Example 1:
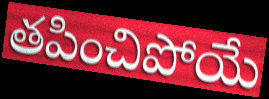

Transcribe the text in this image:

తపించిపోయే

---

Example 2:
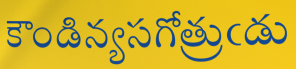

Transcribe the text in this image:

కౌండిన్యసగోత్రుఁడు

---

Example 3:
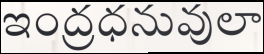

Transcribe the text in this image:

ఇంద్రధనువులా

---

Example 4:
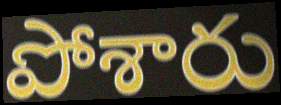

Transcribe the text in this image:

పోశారు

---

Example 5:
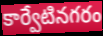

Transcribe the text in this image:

కార్వేటినగరం